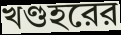
খণ্ডহরের